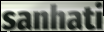
sanhati